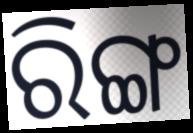
ରିଙ୍ଗ